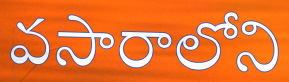
వసారాలోని